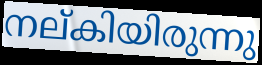
നല്കിയിരുന്നു